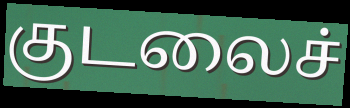
குடலைச்